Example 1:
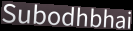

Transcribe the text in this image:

Subodhbhai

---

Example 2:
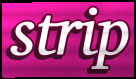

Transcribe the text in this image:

strip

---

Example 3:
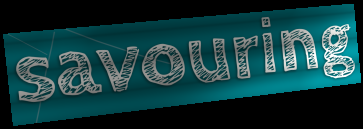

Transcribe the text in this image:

savouring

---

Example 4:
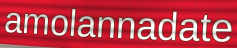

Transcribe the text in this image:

amolannadate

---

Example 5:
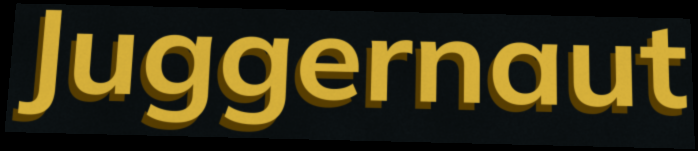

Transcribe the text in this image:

Juggernaut